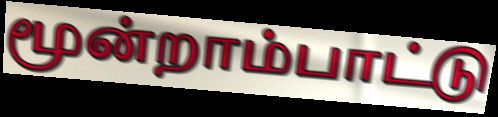
மூன்றாம்பாட்டு